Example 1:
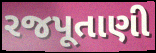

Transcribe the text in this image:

રજપૂતાણી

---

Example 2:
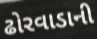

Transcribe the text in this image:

ઢોરવાડાની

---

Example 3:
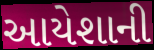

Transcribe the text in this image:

આયેશાની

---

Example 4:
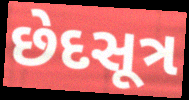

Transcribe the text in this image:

છેદસૂત્ર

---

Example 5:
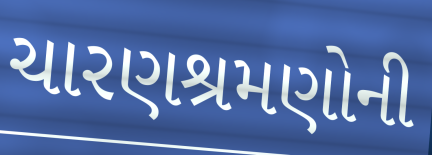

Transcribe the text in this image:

ચારણશ્રમણોની